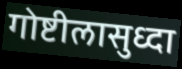
गोष्टीलासुध्दा